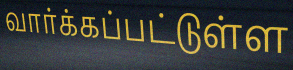
வார்க்கப்பட்டுள்ள